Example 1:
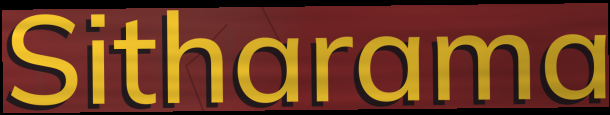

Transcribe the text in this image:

Sitharama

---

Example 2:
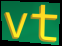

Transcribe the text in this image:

vt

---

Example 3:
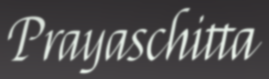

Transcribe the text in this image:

Prayaschitta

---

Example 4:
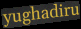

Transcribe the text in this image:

yughadiru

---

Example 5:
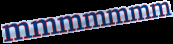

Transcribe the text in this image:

mmmmmmm